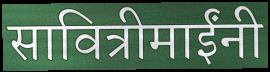
सावित्रीमाईंनी